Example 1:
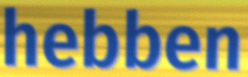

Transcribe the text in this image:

hebben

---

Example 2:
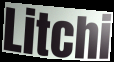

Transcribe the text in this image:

Litchi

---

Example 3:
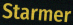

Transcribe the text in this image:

Starmer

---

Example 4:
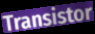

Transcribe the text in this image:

Transistor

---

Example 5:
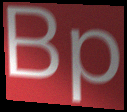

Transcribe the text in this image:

Bp